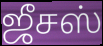
ஜீசஸ்